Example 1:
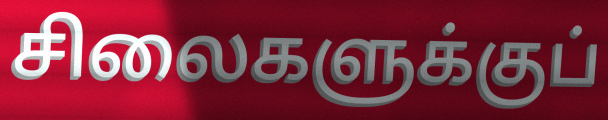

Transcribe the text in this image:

சிலைகளுக்குப்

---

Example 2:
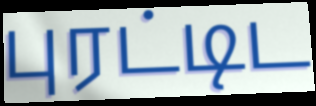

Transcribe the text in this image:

புரட்டிட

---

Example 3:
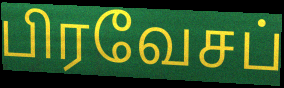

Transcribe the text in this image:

பிரவேசப்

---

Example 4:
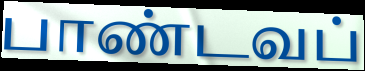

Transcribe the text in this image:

பாண்டவப்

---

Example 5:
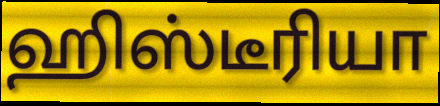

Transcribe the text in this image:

ஹிஸ்டீரியா